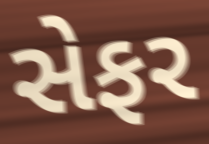
સેફર